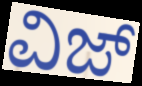
ವಿಜ್